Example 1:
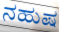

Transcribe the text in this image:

ನಹುಷ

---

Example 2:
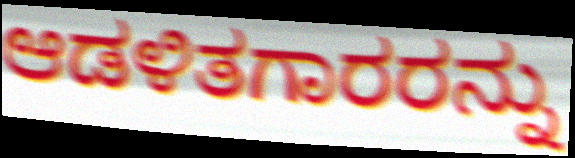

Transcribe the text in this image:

ಆಡಳಿತಗಾರರನ್ನು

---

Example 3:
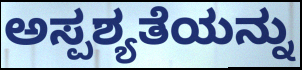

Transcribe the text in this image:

ಅಸ್ಪಶ್ಯತೆಯನ್ನು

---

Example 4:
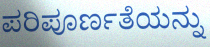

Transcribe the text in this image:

ಪರಿಪೂರ್ಣತೆಯನ್ನು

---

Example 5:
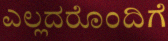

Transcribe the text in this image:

ಎಲ್ಲದರೊಂದಿಗೆ